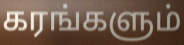
கரங்களும்